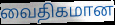
வைதிகமான